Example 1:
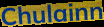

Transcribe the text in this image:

Chulainn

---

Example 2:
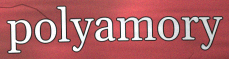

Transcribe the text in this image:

polyamory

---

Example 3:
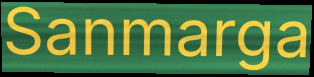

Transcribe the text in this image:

Sanmarga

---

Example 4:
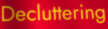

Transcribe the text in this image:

Decluttering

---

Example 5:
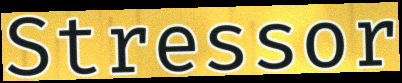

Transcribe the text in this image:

Stressor